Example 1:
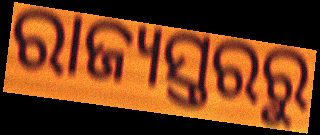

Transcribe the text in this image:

ରାଜ୍ୟସ୍ତରରୁ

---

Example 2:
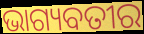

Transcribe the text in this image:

ଭାଗ୍ୟବତୀର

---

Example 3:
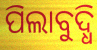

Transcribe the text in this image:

ପିଲାବୁଦ୍ଧି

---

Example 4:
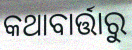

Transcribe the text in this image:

କଥାବାର୍ତ୍ତାରୁ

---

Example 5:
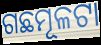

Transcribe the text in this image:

ଗଛମୂଳଟା